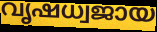
വൃഷധ്വജായ